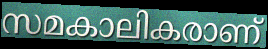
സമകാലികരാണ്